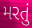
મરતું